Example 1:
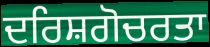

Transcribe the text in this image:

ਦਰਿਸ਼ਗੋਚਰਤਾ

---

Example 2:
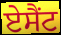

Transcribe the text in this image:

ਏਸੈਂਟ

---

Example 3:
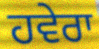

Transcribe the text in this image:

ਹਵੇਰਾ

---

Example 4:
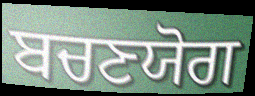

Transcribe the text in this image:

ਬਚਣਯੋਗ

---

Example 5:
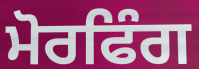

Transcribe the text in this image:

ਮੋਰਫਿੰਗ